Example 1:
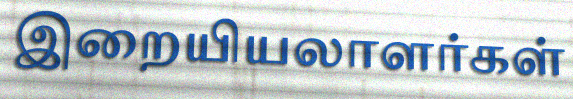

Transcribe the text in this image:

இறையியலாளர்கள்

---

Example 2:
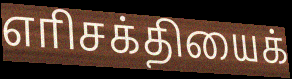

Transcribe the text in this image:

எரிசக்தியைக்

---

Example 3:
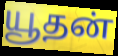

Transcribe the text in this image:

யூதன்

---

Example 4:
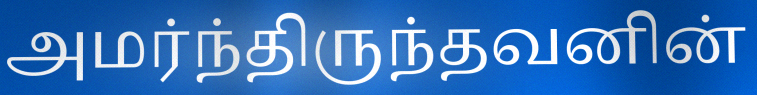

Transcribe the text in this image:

அமர்ந்திருந்தவனின்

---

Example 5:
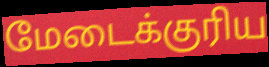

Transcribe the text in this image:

மேடைக்குரிய